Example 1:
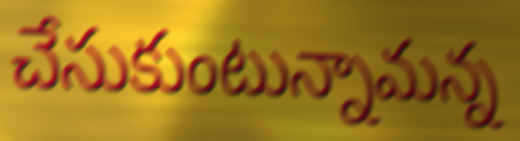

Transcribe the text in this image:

చేసుకుంటున్నామన్న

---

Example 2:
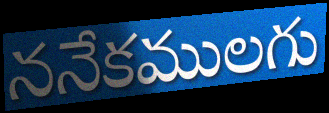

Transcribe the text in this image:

ననేకములగు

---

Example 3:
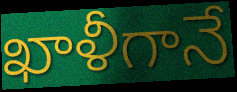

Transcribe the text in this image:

ఖాళీగానే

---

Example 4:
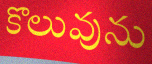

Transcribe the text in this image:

కొలువును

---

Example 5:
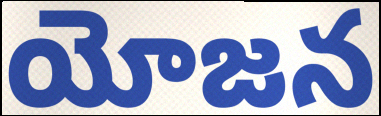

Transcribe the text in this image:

యోజన